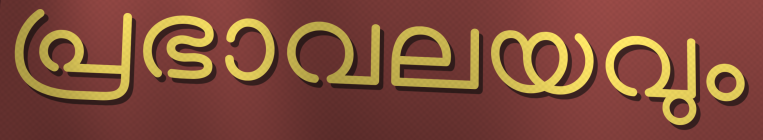
പ്രഭാവലയവും